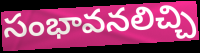
సంభావనలిచ్చి